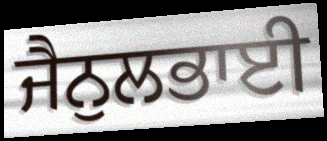
ਜੈਨੁਲਭਾਈ